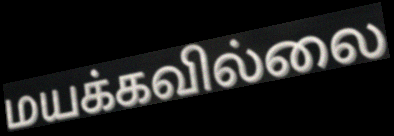
மயக்கவில்லை